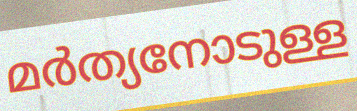
മർത്യനോടുള്ള